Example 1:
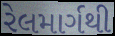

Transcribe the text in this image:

રેલમાર્ગથી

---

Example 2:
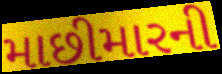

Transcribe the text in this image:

માછીમારની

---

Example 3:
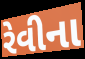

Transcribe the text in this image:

રેવીના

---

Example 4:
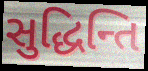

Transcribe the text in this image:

સુદ્ધિન્તિ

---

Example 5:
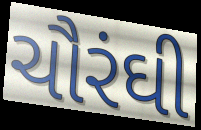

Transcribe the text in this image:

ચૌરંઘી